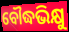
ବୌଦ୍ଧଭିକ୍ଷୁ